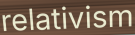
relativism